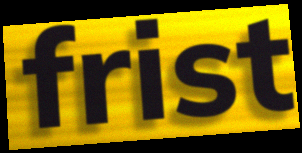
frist